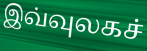
இவ்வுலகச்